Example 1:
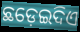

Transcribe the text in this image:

ଛଡ଼େଇଦିଏ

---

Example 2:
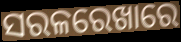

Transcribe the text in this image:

ସରଳରେଖାରେ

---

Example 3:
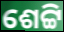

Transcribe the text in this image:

ଶେଟ୍ଟି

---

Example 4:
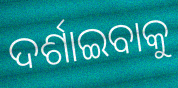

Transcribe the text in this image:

ଦର୍ଶାଇବାକୁ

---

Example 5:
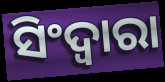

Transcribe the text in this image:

ସିଂଦ୍ୱାରା